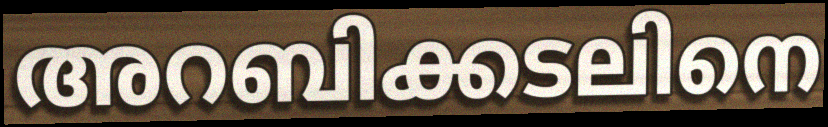
അറബിക്കടലിനെ